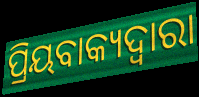
ପ୍ରିୟବାକ୍ୟଦ୍ୱାରା